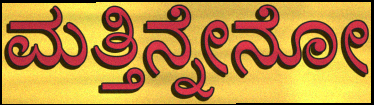
ಮತ್ತಿನ್ನೇನೋ